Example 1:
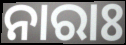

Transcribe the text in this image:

ନାରାଃ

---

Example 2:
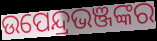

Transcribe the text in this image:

ଉପେନ୍ଦ୍ରଭଞ୍ଜଙ୍କର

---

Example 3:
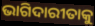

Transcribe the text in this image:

ଭାଗିଦାରୀତାକୁ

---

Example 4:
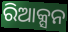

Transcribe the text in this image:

ରିଆକ୍ସନ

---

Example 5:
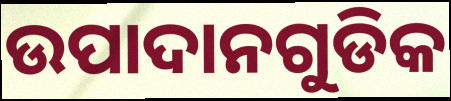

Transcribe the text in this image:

ଉପାଦାନଗୁଡିକ